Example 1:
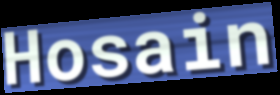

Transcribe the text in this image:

Hosain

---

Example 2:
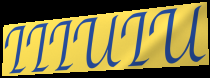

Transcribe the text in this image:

IIIUIU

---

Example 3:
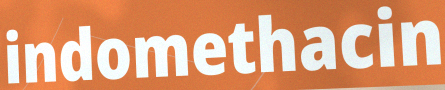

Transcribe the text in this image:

indomethacin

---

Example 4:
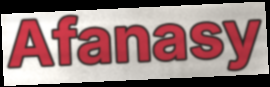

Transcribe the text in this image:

Afanasy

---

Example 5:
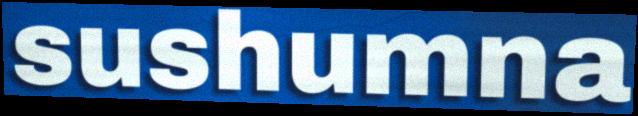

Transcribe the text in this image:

sushumna